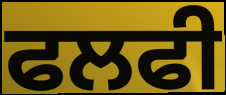
ਫਲਫੀ